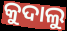
କୁଦାଲୁ